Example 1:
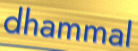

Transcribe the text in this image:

dhammal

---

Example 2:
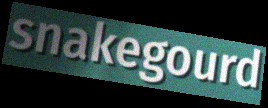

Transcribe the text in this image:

snakegourd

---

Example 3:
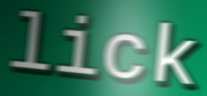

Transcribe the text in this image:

lick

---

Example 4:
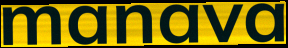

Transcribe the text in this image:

manava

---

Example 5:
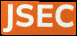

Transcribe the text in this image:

JSEC